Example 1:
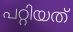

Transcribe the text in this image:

പറ്റിയത്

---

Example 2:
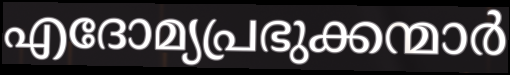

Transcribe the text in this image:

എദോമ്യപ്രഭുക്കന്മാർ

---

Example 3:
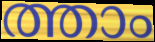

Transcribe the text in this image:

ത്താം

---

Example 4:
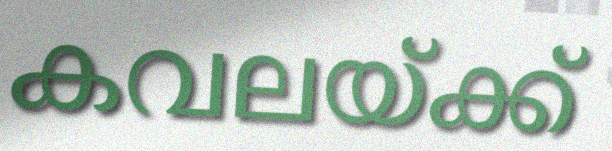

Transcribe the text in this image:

കവലയ്ക്ക്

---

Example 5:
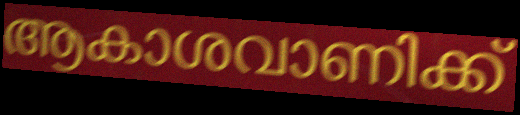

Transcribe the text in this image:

ആകാശവാണിക്ക്